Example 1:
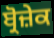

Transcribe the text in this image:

ਬ੍ਰੋਜ਼ੇਕ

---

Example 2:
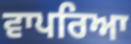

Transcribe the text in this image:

ਵਾਪਰਿਆ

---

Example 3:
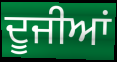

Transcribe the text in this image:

ਦੂਜੀਆਂ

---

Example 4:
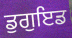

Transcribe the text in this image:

ਡੁਗੁਇਡ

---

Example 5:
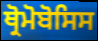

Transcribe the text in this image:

ਥ੍ਰੋਮੋਬੋਸਿਸ